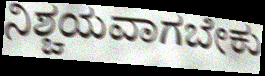
ನಿಶ್ಚಯವಾಗಬೇಕು